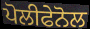
ਪੋਲੀਫੇਨੋਲ